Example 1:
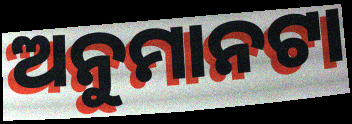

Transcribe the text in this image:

ଅନୁମାନଟା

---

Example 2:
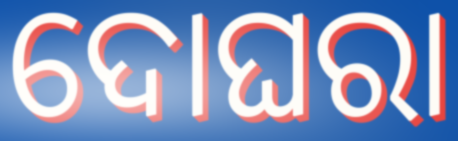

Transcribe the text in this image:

ଦୋଘରା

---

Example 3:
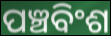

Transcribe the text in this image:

ପଞ୍ଚବିଂଶ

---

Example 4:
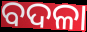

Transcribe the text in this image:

ବଦଳା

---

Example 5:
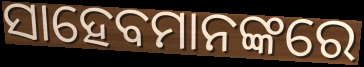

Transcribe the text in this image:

ସାହେବମାନଙ୍କରେ